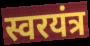
स्वरयंत्र